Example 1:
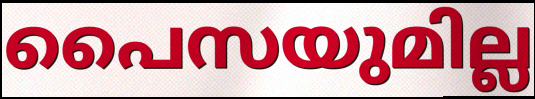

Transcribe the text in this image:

പൈസയുമില്ല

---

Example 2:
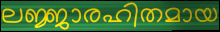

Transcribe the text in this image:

ലജ്ജാരഹിതമായ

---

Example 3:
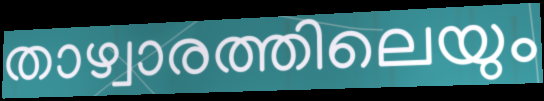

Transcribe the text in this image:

താഴ്വാരത്തിലെയും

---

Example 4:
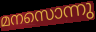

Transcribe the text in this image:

മനസൊന്നു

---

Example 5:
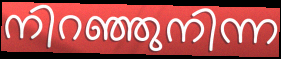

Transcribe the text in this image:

നിറഞ്ഞുനിന്ന